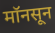
मॉनसून